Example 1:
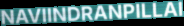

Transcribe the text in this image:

NAVIINDRANPILLAI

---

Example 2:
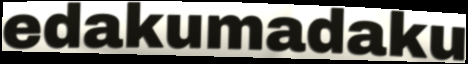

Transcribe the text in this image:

edakumadaku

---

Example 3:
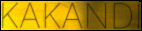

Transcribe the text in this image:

KAKANDI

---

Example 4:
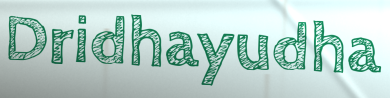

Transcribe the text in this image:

Dridhayudha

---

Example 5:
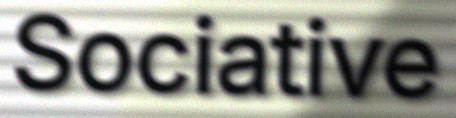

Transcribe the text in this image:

Sociative